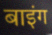
बाइंग